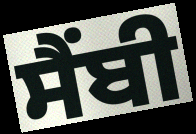
ਸੈਂਬੀ